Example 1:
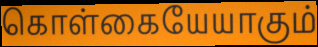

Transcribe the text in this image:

கொள்கையேயாகும்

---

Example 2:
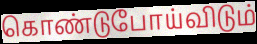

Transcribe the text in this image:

கொண்டுபோய்விடும்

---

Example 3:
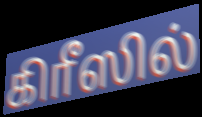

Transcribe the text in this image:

கிரீஸில்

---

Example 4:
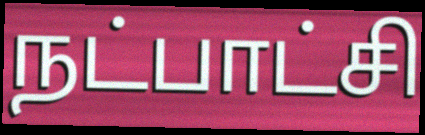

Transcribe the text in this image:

நட்பாட்சி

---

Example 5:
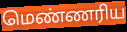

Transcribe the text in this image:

மெண்ணரிய